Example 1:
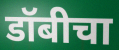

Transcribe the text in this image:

डॉबीचा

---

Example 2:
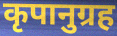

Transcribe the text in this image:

कृपानुग्रह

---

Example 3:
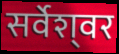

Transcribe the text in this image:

सर्वेश्वर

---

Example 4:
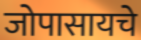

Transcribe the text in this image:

जोपासायचे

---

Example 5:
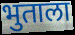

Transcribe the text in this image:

भुताला